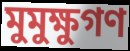
মুমুক্ষুগণ